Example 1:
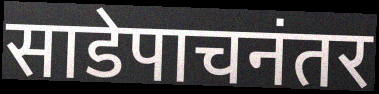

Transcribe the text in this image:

साडेपाचनंतर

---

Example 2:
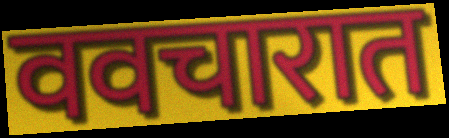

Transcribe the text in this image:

ववचारात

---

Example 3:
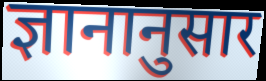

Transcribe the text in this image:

ज्ञानानुसार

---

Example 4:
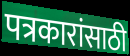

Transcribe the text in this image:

पत्रकारांसाठी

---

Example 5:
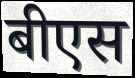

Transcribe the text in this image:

बीएस